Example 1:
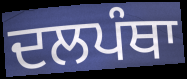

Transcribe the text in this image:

ਦਲਪੰਥਾ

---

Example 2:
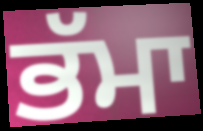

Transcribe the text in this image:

ਭੱਮਾ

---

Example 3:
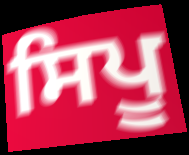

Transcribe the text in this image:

ਸਿਪੂ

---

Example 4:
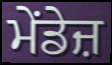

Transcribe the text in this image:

ਮੇਂਡੇਜ਼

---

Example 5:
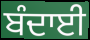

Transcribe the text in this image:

ਬੰਦਾਈ